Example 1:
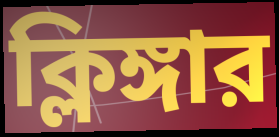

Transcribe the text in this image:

ক্লিঙ্গার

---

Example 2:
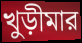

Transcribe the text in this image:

খুড়ীমার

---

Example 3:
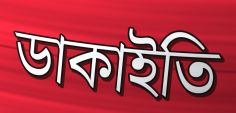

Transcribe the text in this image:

ডাকাইতি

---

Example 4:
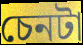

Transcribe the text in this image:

চেনটা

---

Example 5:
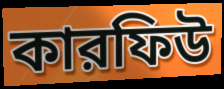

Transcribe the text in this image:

কারফিউ